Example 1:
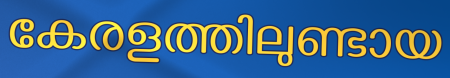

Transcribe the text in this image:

കേരളത്തിലുണ്ടായ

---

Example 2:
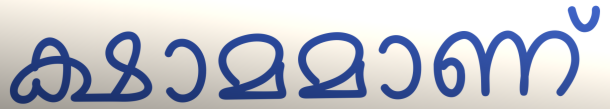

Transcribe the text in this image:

ക്ഷാമമാണ്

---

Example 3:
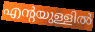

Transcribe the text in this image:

എന്റയുള്ളിൽ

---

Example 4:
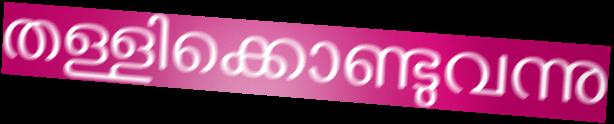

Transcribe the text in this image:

തള്ളിക്കൊണ്ടുവന്നു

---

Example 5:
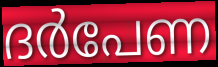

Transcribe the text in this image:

ദർപേണ